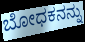
ಬೋಧಕನನ್ನು